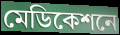
মেডিকেশনে